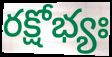
రక్షోభ్యః